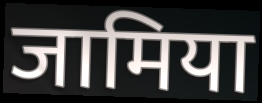
जामिया